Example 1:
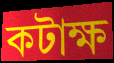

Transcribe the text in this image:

কটাক্ষ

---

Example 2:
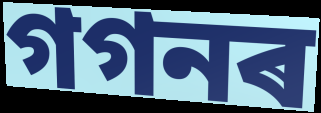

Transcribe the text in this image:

গগনৰ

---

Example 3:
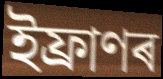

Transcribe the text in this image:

ইফ্ৰাণৰ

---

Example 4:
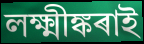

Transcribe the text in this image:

লক্ষ্মীঙ্কৰাই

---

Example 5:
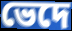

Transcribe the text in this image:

ভেদে